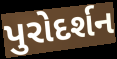
પુરોદર્શન